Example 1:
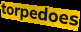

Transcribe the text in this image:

torpedoes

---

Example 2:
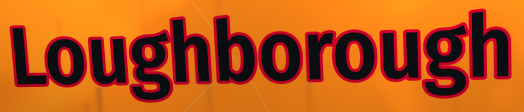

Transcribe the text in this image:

Loughborough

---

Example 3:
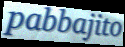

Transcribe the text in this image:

pabbajito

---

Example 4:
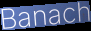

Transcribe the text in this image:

Banach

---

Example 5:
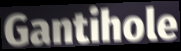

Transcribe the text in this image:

Gantihole